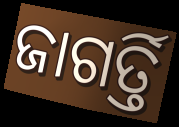
ଜାଗର୍ତ୍ତି